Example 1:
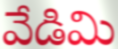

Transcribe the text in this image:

వేడిమి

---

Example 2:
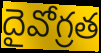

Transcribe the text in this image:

దైవోగ్రత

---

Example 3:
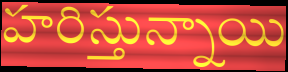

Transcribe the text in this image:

హరిస్తున్నాయి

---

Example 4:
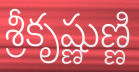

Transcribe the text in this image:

శ్రీకృష్ణుణ్ణి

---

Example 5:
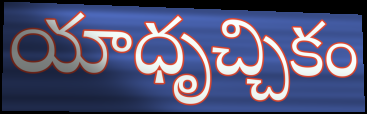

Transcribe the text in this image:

యాధృచ్చికం